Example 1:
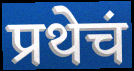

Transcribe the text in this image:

प्रथेचं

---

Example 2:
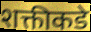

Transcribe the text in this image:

शक्तीकडे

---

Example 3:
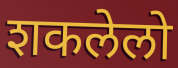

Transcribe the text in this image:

शकलेलो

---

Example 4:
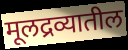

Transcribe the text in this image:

मूलद्रव्यातील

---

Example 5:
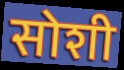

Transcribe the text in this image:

सोशी